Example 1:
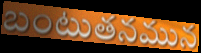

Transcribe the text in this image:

బంటుతనమున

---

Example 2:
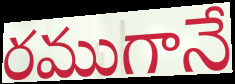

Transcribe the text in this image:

రముగానే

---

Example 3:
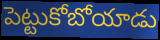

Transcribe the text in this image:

పెట్టుకోబోయాడు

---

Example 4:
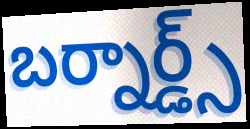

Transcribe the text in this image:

బర్నార్డ్స్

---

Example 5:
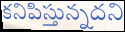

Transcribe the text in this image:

కనిపిస్తున్నదని